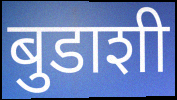
बुडाशी